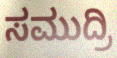
ಸಮುದ್ರಿ